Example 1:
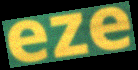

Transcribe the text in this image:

eze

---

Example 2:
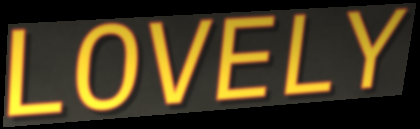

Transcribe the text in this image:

LOVELY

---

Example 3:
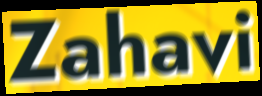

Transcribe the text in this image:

Zahavi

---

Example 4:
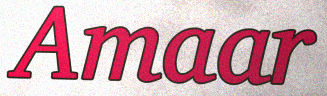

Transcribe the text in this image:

Amaar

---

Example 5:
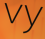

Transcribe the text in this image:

vy